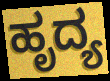
ಹೃದ್ಯ